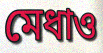
মেধাও